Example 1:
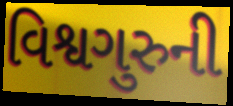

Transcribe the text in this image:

વિશ્વગુરુની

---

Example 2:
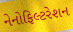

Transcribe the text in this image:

નેનોફિલ્ટરેશન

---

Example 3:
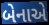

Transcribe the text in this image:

બેનાએ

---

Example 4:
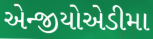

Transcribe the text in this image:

એન્જીયોએડીમા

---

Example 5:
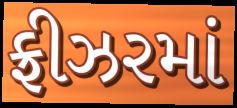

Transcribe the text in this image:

ફ્રીઝરમાં